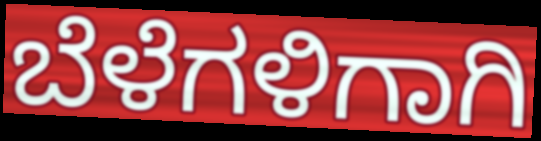
ಬೆಳೆಗಳಿಗಾಗಿ